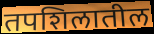
तपशिलातील